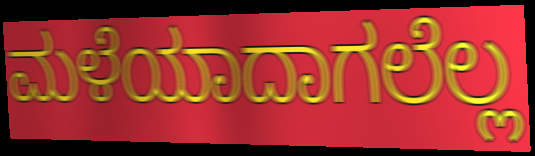
ಮಳೆಯಾದಾಗಲೆಲ್ಲ